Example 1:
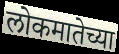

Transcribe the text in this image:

लोकमातेच्या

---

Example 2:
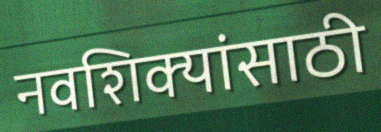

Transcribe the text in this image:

नवशिक्यांसाठी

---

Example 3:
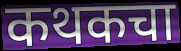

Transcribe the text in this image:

कथकचा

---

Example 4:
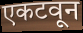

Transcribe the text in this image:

एकटवून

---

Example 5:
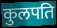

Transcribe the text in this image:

कुलपति